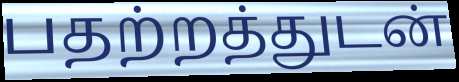
பதற்றத்துடன்